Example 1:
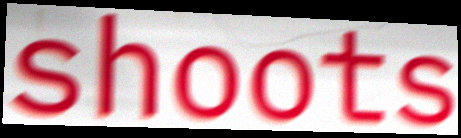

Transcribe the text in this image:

shoots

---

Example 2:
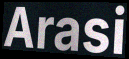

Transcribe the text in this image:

Arasi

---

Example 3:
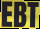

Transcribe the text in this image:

EBT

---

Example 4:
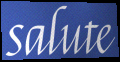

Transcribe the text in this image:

salute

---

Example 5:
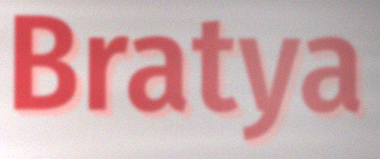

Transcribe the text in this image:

Bratya